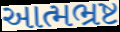
આત્મભ્રષ્ટ